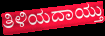
ತಿಳಿಯದಾಯ್ತು